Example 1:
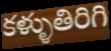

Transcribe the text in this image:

కళ్ళుతిరిగి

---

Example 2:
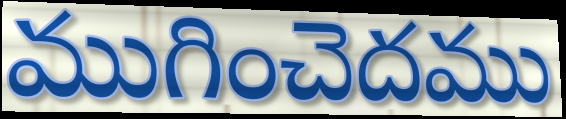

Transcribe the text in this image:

ముగించెదము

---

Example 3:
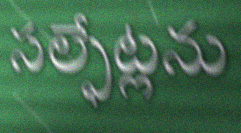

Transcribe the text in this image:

సల్ఫేట్లను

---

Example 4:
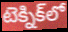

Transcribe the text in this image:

టెక్నిక్‌లో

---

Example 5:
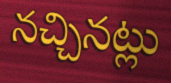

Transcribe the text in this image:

నచ్చినట్లు